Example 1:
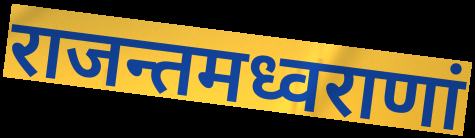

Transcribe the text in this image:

राजन्तमध्वराणां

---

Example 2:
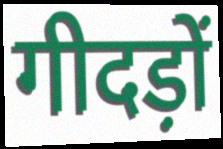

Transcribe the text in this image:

गीदड़ों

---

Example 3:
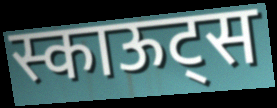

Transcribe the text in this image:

स्काऊट्स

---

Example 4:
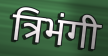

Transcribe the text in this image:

त्रिभंगी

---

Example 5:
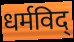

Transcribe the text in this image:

धर्मविद्